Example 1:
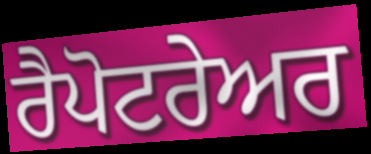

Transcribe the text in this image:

ਰੈਪੋਟਰੇਅਰ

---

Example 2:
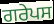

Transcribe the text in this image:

ਗਰੇਪਸ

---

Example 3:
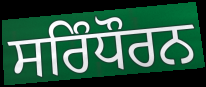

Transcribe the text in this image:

ਸਰਿੰਧੌਰਨ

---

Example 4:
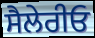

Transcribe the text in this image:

ਸੈਲੇਰੀਓ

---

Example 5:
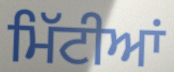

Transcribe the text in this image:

ਮਿੱਟੀਆਂ